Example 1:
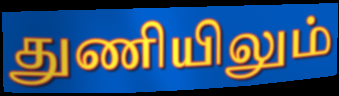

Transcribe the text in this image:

துணியிலும்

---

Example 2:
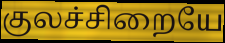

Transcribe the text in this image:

குலச்சிறையே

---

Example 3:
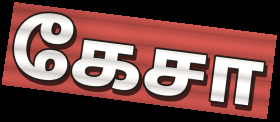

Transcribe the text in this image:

கேசா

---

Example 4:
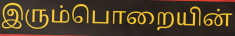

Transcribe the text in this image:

இரும்பொறையின்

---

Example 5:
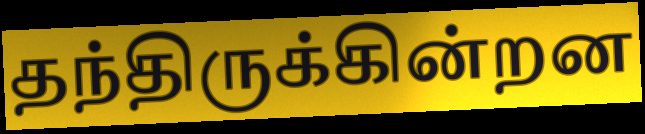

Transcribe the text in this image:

தந்திருக்கின்றன